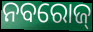
ନବରୋଜ୍